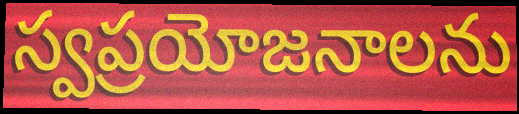
స్వప్రయోజనాలను